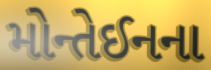
મોન્તેઈનના